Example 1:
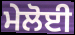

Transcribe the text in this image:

ਮੇਲੋਈ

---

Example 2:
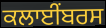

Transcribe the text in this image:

ਕਲਾਈਂਬਰਸ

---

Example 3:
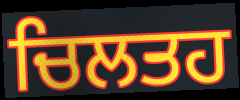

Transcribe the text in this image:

ਚਿਲਤਹ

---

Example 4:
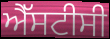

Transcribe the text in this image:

ਐੱਸਟੀਸੀ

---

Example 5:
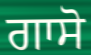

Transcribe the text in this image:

ਗਾਸੋ